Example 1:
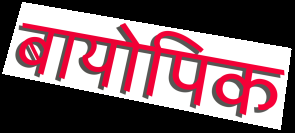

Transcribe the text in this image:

बायोपिक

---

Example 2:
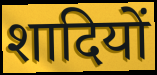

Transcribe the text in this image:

शादियों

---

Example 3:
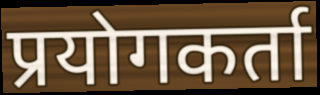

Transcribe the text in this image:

प्रयोगकर्ता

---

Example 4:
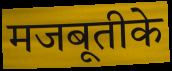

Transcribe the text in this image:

मजबूतीके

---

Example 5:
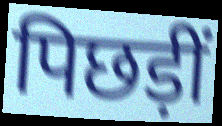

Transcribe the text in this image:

पिछड़ीं